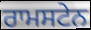
ਰਾਮਸਟੇਨ